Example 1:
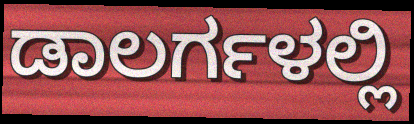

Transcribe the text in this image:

ಡಾಲರ್ಗಳಲ್ಲಿ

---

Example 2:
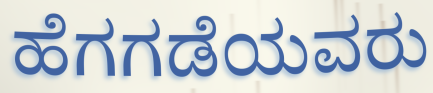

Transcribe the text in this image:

ಹೆಗಗಡೆಯವರು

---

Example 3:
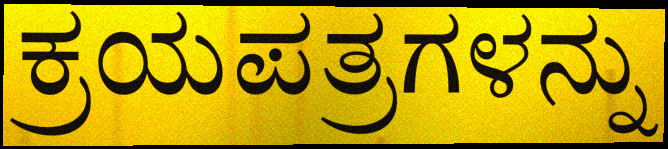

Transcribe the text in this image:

ಕ್ರಯಪತ್ರಗಳನ್ನು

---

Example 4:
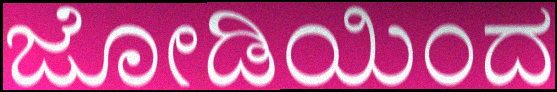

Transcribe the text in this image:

ಜೋಡಿಯಿಂದ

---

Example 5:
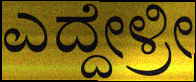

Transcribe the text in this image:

ಎದ್ದೇಳ್ರೀ